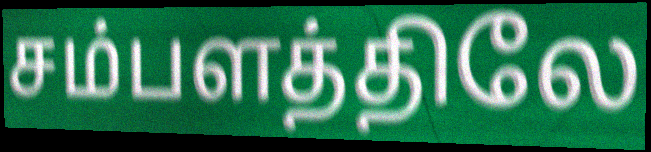
சம்பளத்திலே